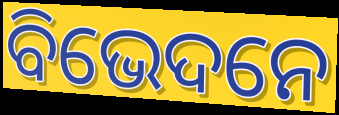
ବିଭେଦନେ